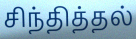
சிந்தித்தல்